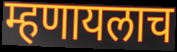
म्हणायलाच